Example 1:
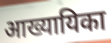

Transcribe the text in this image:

आख्यायिका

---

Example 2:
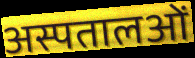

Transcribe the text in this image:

अस्पतालओं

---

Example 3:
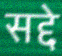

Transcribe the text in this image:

सद्दे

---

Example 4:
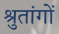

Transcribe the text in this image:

श्रुतांगों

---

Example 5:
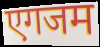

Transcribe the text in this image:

एगजम